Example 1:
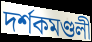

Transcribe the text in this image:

দর্শকমণ্ডলী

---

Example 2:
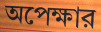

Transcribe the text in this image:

অপেক্ষার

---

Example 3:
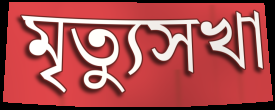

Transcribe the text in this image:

মৃত্যুসখা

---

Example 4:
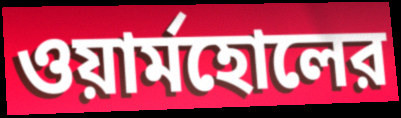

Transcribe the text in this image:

ওয়ার্মহোলের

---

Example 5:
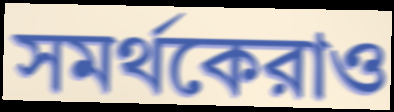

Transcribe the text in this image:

সমর্থকেরাও